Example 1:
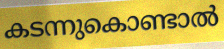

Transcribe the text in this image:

കടന്നുകൊണ്ടാൽ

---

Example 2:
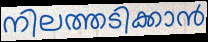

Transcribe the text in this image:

നിലത്തടിക്കാൻ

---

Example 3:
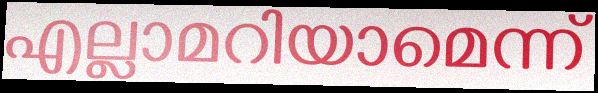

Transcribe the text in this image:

എല്ലാമറിയാമെന്ന്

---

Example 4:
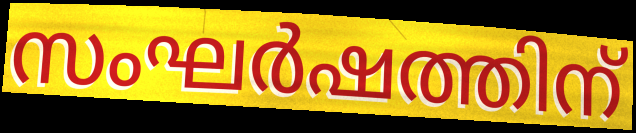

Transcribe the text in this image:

സംഘർഷത്തിന്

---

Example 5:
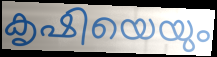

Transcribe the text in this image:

കൃഷിയെയും